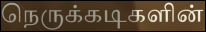
நெருக்கடிகளின்